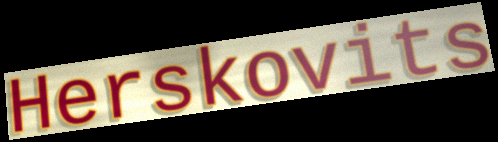
Herskovits